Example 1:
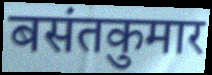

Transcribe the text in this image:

बसंतकुमार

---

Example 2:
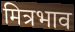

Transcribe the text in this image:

मित्रभाव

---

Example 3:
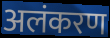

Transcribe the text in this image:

अलंकरण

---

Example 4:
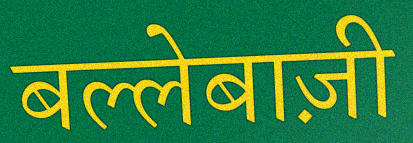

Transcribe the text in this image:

बल्लेबाज़ी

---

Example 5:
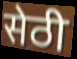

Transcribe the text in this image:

सेठी